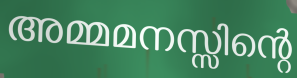
അമ്മമനസ്സിന്റെ